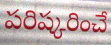
పరిష్కరించే